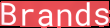
Brands